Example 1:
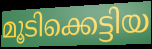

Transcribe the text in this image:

മൂടിക്കെട്ടിയ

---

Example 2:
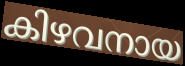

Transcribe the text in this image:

കിഴവനായ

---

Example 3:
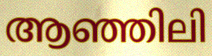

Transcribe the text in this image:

ആഞ്ഞിലി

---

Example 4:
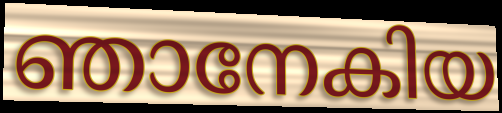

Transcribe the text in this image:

ഞാനേകിയ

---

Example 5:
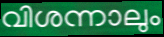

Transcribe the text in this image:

വിശന്നാലും